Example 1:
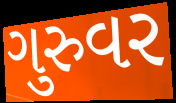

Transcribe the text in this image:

ગુરુવર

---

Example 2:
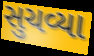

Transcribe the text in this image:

સુચવ્યા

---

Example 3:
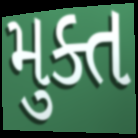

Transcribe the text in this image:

મુક્ત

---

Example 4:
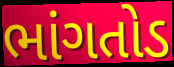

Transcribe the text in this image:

ભાંગતોડ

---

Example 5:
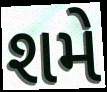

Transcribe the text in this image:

શમે